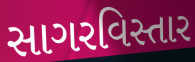
સાગરવિસ્તાર